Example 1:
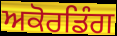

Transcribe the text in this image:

ਅਕੋਰਡਿੰਗ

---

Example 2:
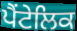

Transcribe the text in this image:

ਪੈਂਟੇਲਿਕ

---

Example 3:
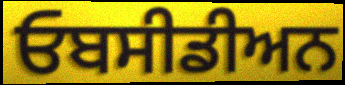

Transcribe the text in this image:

ਓਬਸੀਡੀਅਨ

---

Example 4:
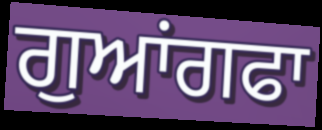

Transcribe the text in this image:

ਗੁਆਂਗਫਾ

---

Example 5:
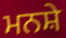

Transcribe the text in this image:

ਮਨਸ਼ੇ